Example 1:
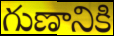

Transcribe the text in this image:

గుణానికి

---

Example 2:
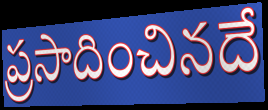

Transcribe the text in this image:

ప్రసాదించినదే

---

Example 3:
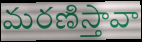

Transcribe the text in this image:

మరణిస్తావా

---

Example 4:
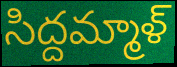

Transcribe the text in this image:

సిద్దమ్మాళ్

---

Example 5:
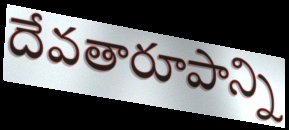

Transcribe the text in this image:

దేవతారూపాన్ని